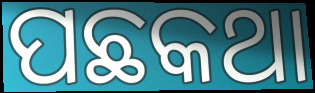
ପଛକଥା